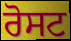
ਰੋਸਟ